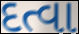
દત્વા